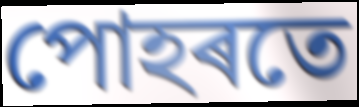
পোহৰতে